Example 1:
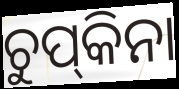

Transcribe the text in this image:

ଚୁପ୍‌କିନା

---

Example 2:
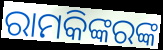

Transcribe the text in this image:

ରାମକିଙ୍କରଙ୍କ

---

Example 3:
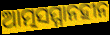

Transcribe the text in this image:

ଆତ୍ମସମ୍ମାନହୀନ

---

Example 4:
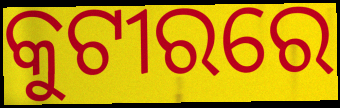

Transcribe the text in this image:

କୁଟୀରରେ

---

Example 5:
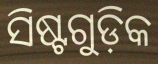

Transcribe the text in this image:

ସିଷ୍ଟଗୁଡ଼ିକ